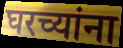
घरच्‍यांना